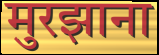
मुरझाना